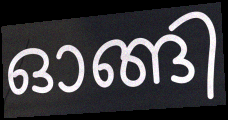
ഓങ്ങി